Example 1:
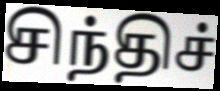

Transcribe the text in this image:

சிந்திச்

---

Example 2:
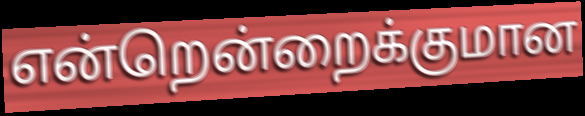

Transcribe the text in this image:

என்றென்றைக்குமான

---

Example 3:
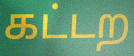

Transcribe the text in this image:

கட்டற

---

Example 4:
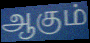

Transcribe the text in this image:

ஆகும்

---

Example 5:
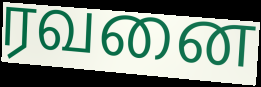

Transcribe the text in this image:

ரவனை